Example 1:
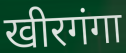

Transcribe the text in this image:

खीरगंगा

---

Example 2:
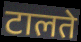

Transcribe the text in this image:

टालते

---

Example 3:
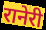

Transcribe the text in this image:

रानेरी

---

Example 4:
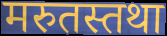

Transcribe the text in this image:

मरुतस्तथा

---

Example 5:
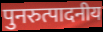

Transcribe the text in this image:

पुनरुत्पादनीय